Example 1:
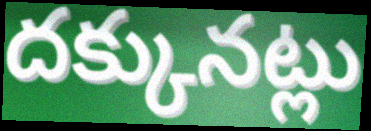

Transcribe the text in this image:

దక్కునట్లు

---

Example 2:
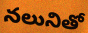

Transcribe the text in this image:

నలునితో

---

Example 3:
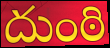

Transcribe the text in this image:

దుంఠి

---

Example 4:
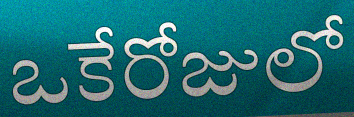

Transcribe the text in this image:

ఒకేరోజులో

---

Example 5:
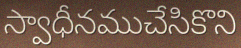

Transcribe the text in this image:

స్వాధీనముచేసికొని